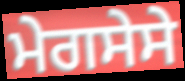
ਮੇਗਸੇਸੇ